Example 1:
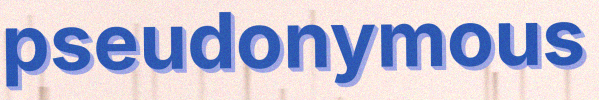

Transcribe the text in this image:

pseudonymous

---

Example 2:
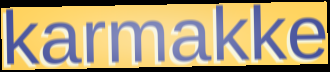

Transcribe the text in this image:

karmakke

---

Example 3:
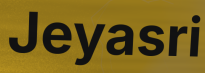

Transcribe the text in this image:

Jeyasri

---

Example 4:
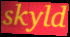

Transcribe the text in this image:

skyld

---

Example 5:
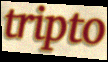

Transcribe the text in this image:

tripto